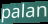
palan